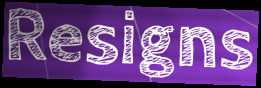
Resigns